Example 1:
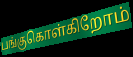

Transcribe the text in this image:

பங்குகொள்கிறோம்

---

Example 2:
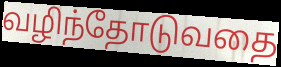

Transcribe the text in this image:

வழிந்தோடுவதை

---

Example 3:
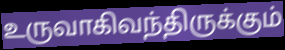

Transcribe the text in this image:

உருவாகிவந்திருக்கும்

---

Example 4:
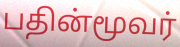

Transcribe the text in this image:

பதின்மூவர்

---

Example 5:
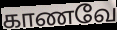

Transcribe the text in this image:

காணவே